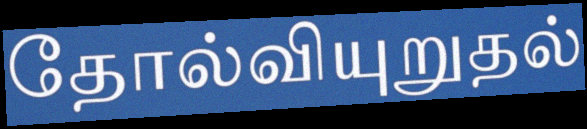
தோல்வியுறுதல்